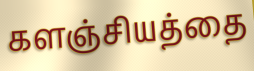
களஞ்சியத்தை